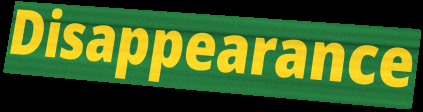
Disappearance